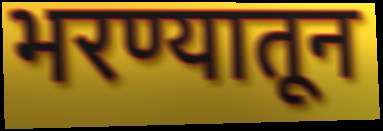
भरण्यातून